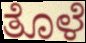
ತೊಳೆ